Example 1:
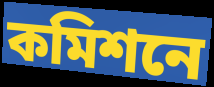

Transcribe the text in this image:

কমিশনে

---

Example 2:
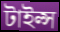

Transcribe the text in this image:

টাইল্স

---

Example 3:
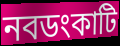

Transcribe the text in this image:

নবডংকাটি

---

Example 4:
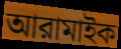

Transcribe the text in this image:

আরামাইক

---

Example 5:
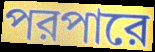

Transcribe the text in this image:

পরপারে